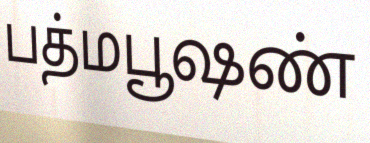
பத்மபூஷண்